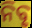
ନିବୃ